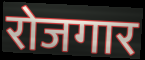
रोजगार